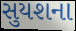
સુયશના